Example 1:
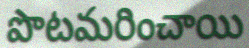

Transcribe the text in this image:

పొటమరించాయి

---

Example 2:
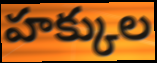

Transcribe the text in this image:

హక్కుల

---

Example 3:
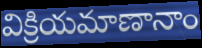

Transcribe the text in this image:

విక్రియమాణానాం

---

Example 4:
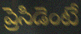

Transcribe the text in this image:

ప్రెసిడెంటే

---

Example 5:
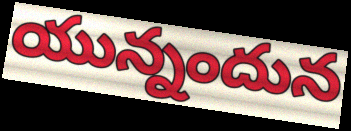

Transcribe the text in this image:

యున్నందున